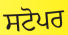
ਸਟੋਪਰ